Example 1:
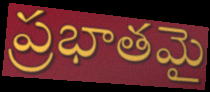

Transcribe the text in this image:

ప్రభాతమై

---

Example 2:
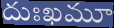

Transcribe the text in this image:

దుఃఖమూ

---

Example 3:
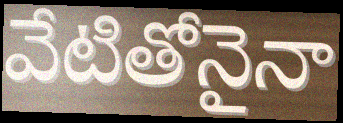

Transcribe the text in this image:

వేటితోనైనా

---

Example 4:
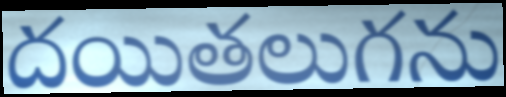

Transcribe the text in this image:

దయితలుగను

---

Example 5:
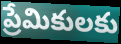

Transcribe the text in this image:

ప్రేమికులకు